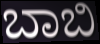
ಬಾಬಿ